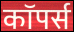
कॉपर्स